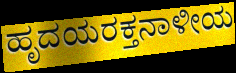
ಹೃದಯರಕ್ತನಾಳೀಯ